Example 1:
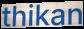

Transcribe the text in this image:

thikan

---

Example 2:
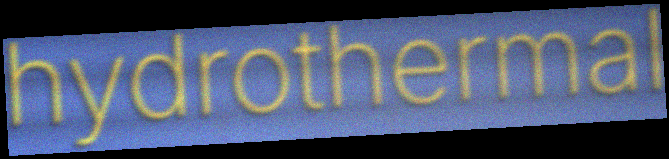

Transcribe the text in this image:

hydrothermal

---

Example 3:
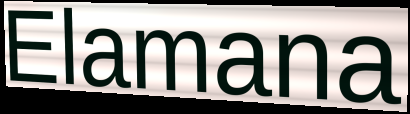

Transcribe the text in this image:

Elamana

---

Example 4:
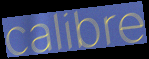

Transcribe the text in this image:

calibre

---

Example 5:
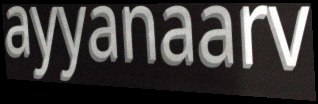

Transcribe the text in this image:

ayyanaarv